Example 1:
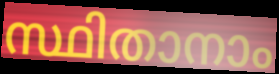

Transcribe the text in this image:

സ്ഥിതാനാം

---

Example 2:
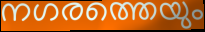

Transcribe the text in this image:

നഗരത്തെയും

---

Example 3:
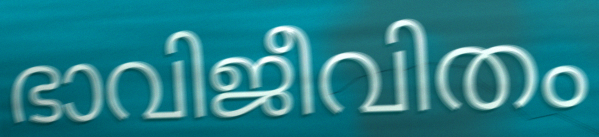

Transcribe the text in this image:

ഭാവിജീവിതം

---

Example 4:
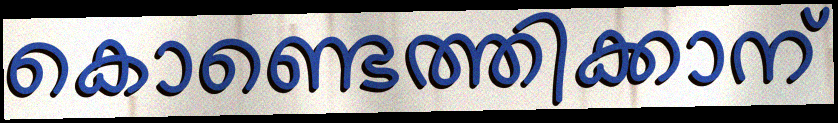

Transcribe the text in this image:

കൊണ്ടെത്തിക്കാന്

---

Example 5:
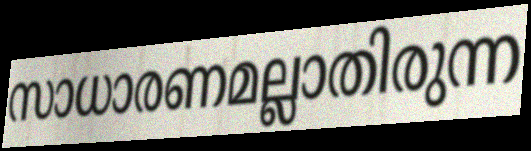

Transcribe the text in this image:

സാധാരണമല്ലാതിരുന്ന